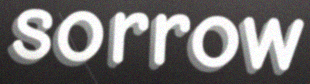
sorrow